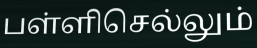
பள்ளிசெல்லும்